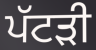
ਪੱਟੜੀ